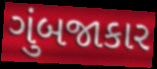
ગુંબજાકાર